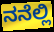
ನನೆಲ್ಲಿ